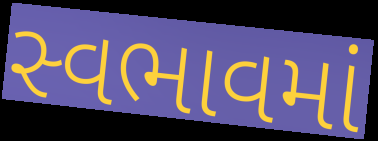
સ્વભાવમાં